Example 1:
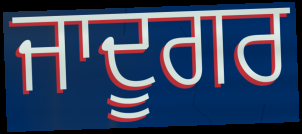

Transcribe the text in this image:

ਜਾਦੂਗਰ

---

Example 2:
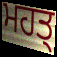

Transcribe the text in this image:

ਮਹਤ੍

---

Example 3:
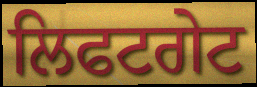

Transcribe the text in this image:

ਲਿਫਟਗੇਟ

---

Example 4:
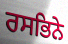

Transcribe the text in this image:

ਰਸਭਿਨੇ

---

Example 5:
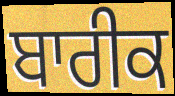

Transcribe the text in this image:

ਬਾਰੀਕ